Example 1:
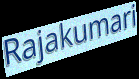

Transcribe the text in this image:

Rajakumari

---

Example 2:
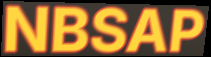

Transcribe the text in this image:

NBSAP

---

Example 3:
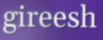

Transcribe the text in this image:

gireesh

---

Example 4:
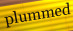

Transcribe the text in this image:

plummed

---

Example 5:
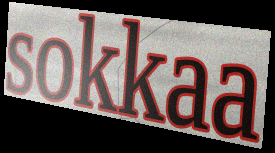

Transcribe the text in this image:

sokkaa